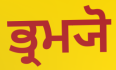
ਭ੍ਰਮ੍ਯੋ